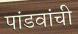
पांडवांची